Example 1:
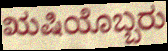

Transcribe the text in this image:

ಋಷಿಯೊಬ್ಬರು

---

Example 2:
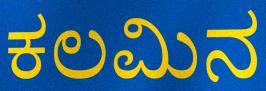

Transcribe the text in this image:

ಕಲಮಿನ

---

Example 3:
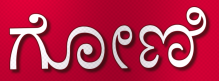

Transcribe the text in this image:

ಗೋಣಿ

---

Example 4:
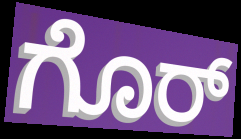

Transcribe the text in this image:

ಗೊರ್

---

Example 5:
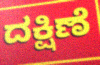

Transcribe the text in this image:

ದಕ್ಷಿಣೆ